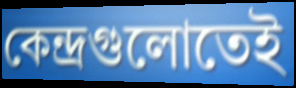
কেন্দ্রগুলোতেই